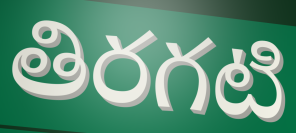
తిరగటి